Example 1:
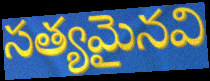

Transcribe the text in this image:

సత్యమైనవి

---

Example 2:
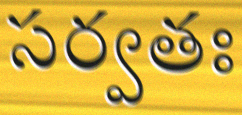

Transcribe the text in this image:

సర్వతః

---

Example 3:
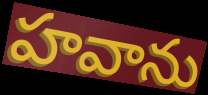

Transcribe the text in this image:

హవాను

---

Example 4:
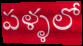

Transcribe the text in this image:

పళ్ళలో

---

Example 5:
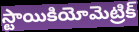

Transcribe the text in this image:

స్టాయికియోమెట్రిక్